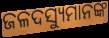
ଜଳଦସ୍ୟୁମାନଙ୍କ